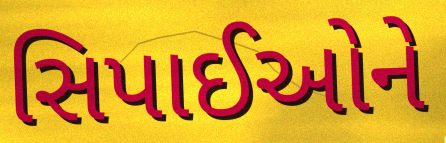
સિપાઈઓને